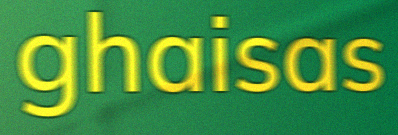
ghaisas